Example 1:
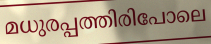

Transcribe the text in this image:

മധുരപ്പത്തിരിപോലെ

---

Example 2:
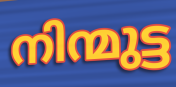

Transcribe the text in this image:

നിന്മുട്ട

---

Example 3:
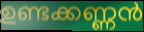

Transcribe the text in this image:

ഉണ്ടക്കണ്ണൻ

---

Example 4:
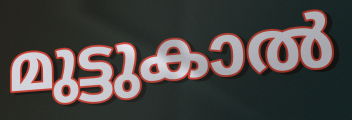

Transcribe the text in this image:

മുട്ടുകാൽ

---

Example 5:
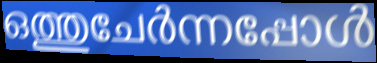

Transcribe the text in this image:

ഒത്തുചേർന്നപ്പോൾ